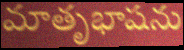
మాతృభాషను